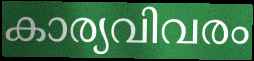
കാര്യവിവരം